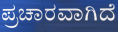
ಪ್ರಚಾರವಾಗಿದೆ